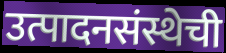
उत्पादनसंस्थेची